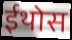
ईथोस